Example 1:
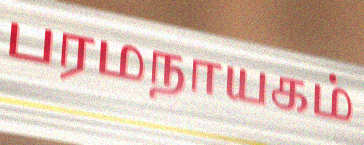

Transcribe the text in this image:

பரமநாயகம்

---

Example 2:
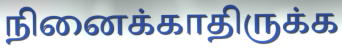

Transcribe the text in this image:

நினைக்காதிருக்க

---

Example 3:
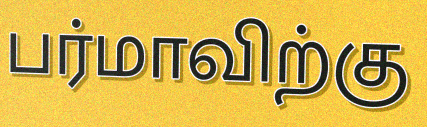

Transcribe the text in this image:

பர்மாவிற்கு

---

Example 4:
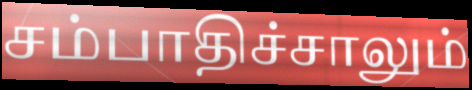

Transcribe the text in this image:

சம்பாதிச்சாலும்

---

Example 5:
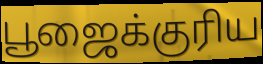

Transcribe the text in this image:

பூஜைக்குரிய